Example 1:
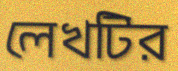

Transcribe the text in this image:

লেখটির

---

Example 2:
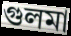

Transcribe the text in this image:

গুলমা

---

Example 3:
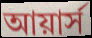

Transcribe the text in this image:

আয়ার্স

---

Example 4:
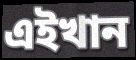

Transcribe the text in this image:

এইখান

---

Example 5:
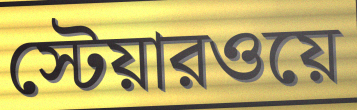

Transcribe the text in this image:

স্টেয়ারওয়ে